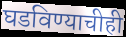
घडविण्याचीही